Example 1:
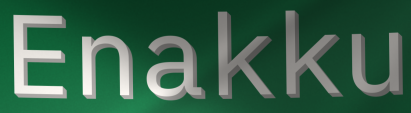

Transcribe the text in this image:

Enakku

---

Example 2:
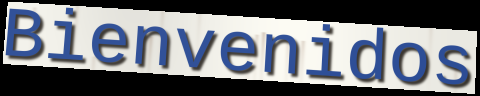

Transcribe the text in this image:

Bienvenidos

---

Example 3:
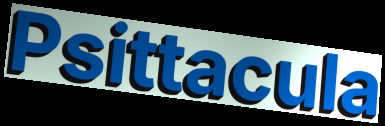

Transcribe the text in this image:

Psittacula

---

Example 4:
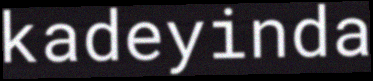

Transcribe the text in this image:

kadeyinda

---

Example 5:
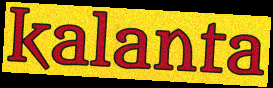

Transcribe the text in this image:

kalanta